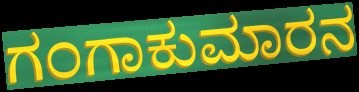
ಗಂಗಾಕುಮಾರನ